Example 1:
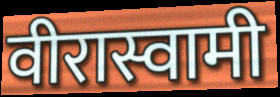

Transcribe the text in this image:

वीरास्वामी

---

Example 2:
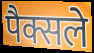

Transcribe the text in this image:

पैक्सले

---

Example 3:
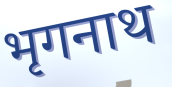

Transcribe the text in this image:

भृगनाथ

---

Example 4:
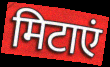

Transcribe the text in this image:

मिटाएं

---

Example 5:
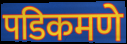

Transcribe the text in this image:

पडिकमणे